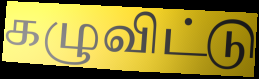
கழுவிட்டு